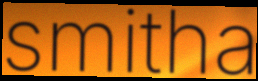
smitha